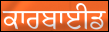
ਕਾਰਬਾਈਡ